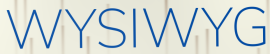
WYSIWYG